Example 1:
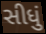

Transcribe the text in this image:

સીધું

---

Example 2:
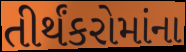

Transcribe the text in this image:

તીર્થંકરોમાંના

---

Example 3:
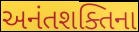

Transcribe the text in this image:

અનંતશક્તિના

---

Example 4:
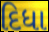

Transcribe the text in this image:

દિધા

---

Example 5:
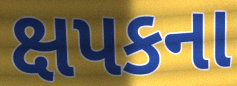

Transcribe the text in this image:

ક્ષપકના